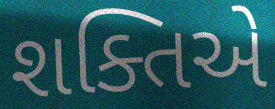
શક્તિએ